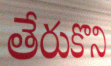
తేరుకొని